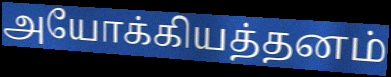
அயோக்கியத்தனம்